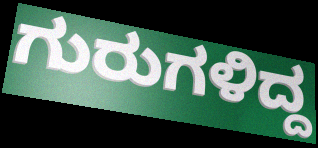
ಗುರುಗಳಿದ್ದ